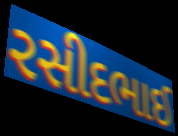
રસીદભાઈ